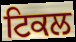
ਟਿਕਲ